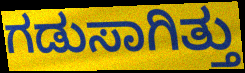
ಗಡುಸಾಗಿತ್ತು